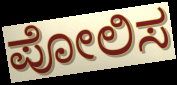
ಪೋಲಿಸ